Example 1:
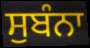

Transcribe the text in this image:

ਸੁਬੰਨਾ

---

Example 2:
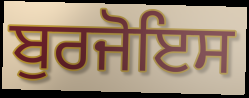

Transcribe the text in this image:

ਬੁਰਜੋਇਸ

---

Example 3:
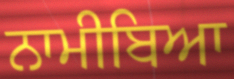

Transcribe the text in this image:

ਨਾਮੀਬਿਆ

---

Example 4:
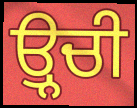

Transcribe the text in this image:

ਉ੍ਨਚੀ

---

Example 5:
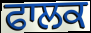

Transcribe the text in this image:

ਫਾਲਕ